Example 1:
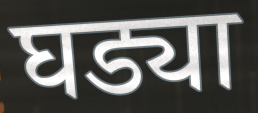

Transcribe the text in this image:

घड्या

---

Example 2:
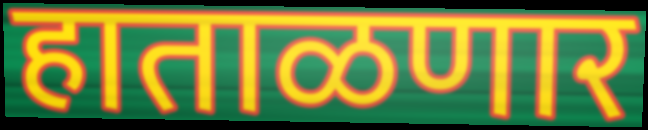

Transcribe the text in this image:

हाताळणार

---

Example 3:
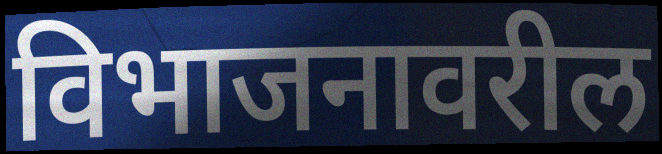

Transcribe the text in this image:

विभाजनावरील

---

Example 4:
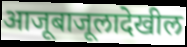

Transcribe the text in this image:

आजूबाजूलादेखील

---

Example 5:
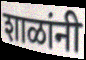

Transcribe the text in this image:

शाळांनी